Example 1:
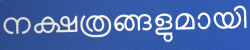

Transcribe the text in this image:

നക്ഷത്രങ്ങളുമായി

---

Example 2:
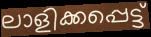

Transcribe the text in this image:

ലാളിക്കപ്പെട്ട്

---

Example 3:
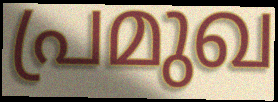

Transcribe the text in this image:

പ്രമുഖ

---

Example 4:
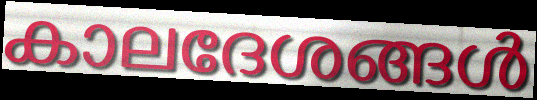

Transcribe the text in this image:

കാലദേശങ്ങൾ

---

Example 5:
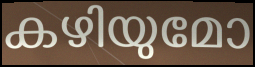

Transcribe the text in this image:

കഴിയുമോ